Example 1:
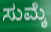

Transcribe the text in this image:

ಸುಮ್ಕೆ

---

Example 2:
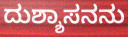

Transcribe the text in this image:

ದುಶ್ಶಾಸನನು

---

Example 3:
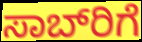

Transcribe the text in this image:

ಸಾಬ್‌ರಿಗೆ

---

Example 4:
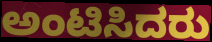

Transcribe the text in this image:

ಅಂಟಿಸಿದರು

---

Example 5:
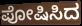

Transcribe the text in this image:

ಪೋಷಿಸಿದ